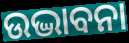
ଉଦ୍ଭାବନା